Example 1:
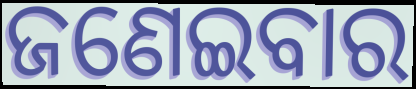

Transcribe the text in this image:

ଜଣେଇବାର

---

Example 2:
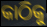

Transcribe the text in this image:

କାଠିକୁ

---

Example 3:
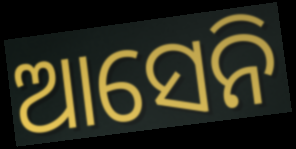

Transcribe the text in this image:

ଆସେନି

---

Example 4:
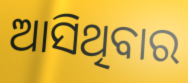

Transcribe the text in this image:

ଆସିଥିବାର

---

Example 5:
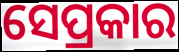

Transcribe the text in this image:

ସେପ୍ରକାର